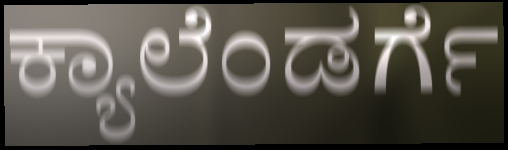
ಕ್ಯಾಲೆಂಡರ್ಗೆ